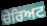
ਚੇਰਿਅਟ